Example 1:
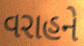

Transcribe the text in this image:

વરાહને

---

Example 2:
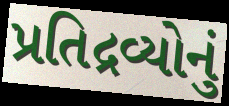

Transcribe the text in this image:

પ્રતિદ્રવ્યોનું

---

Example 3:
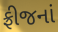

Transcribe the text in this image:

ફ્રીજનાં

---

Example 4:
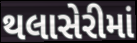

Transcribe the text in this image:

થલાસેરીમાં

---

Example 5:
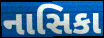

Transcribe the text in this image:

નાસિકા